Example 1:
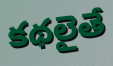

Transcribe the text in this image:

కథలైతే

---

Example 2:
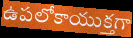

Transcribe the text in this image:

ఉపలోకాయుక్తగా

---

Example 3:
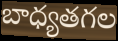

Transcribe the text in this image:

బాధ్యతగల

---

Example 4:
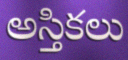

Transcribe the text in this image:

అస్తికలు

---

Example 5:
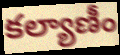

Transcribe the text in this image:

కల్యాణీం